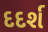
દદર્શ